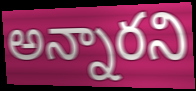
అన్నారని